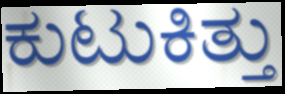
ಕುಟುಕಿತ್ತು